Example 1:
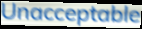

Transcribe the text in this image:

Unacceptable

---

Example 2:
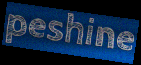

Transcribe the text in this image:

peshine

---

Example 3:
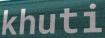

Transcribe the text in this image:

khuti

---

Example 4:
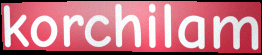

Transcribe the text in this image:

korchilam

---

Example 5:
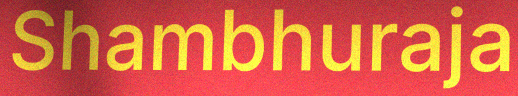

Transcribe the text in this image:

Shambhuraja